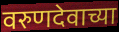
वरुणदेवाच्या